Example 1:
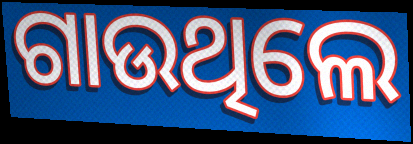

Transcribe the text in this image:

ଗାଉଥିଲେ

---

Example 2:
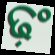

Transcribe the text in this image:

ଢ଼ଂ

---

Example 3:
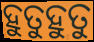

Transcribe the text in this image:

ହୁତୁହୁତୁ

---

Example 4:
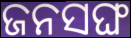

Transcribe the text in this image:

ଜନସଙ୍ଘ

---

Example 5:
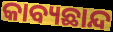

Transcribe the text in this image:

କାବ୍ୟଛାନ୍ଦ